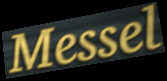
Messel